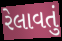
રેલાવતું